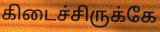
கிடைச்சிருக்கே